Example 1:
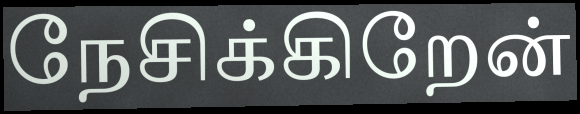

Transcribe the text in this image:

நேசிக்கிறேன்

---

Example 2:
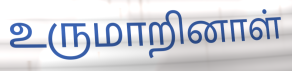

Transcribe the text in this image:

உருமாறினாள்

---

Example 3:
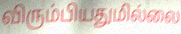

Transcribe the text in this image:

விரும்பியதுமில்லை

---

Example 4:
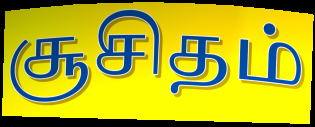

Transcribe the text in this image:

சூசிதம்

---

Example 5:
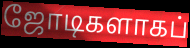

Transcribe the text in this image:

ஜோடிகளாகப்